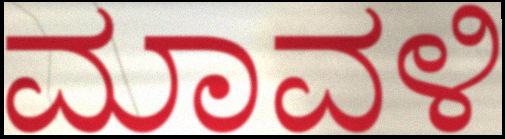
ಮಾವಳಿ